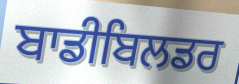
ਬਾਡੀਬਿਲਡਰ